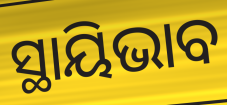
ସ୍ଥାୟିଭାବ